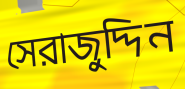
সেরাজুদ্দিন